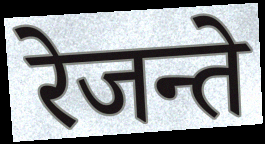
रेजन्ते